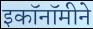
इकॉनॉमीने